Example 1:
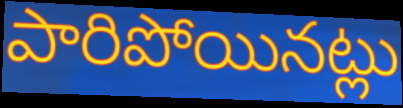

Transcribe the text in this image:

పారిపోయినట్లు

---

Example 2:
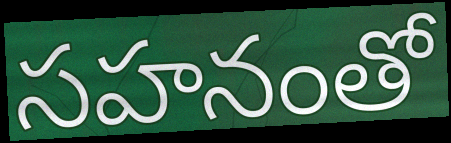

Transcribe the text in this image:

సహనంతో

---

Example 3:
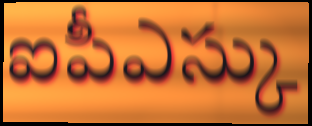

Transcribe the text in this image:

ఐపీఎస్కు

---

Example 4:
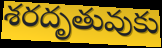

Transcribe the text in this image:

శరదృతువుకు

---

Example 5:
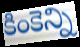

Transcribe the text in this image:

కింకెన్ని